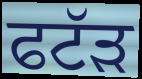
ਫਟੱੜ